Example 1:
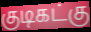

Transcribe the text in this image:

குடிகட்கு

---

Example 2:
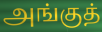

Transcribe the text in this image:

அங்குத்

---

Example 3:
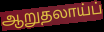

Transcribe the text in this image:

ஆறுதலாய்ப்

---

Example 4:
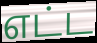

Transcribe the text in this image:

எட்ட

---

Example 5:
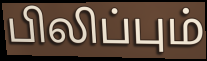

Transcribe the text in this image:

பிலிப்பும்